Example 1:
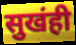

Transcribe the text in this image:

सुखंही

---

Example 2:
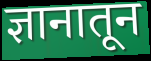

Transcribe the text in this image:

ज्ञानातून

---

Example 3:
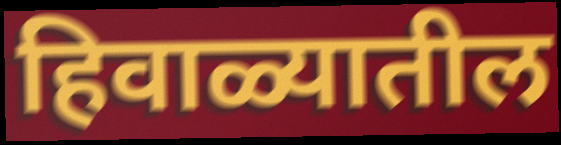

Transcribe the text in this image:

हिवाळ्यातील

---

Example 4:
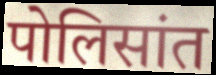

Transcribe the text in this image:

पोलिसांत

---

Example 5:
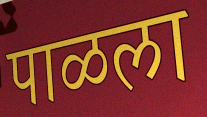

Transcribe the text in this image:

पाळला